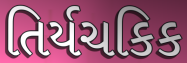
તિર્યચકિક